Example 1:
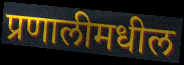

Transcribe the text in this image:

प्रणालीमधील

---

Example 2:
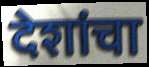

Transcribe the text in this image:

देशांचा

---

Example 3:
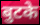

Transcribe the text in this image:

बुटके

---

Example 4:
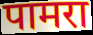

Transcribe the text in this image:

पामरा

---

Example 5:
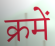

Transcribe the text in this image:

क्रमें